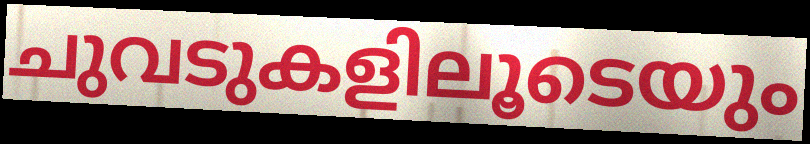
ചുവടുകളിലൂടെയും